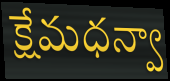
క్షేమధన్వా